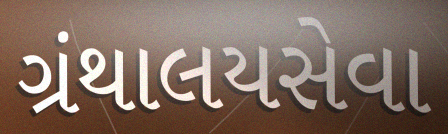
ગ્રંથાલયસેવા